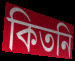
কিতনি